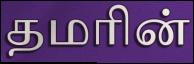
தமரின்